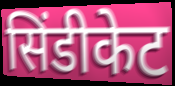
सिंडीकेट